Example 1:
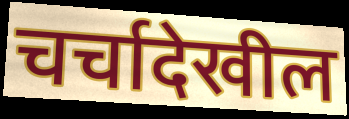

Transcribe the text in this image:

चर्चादेखील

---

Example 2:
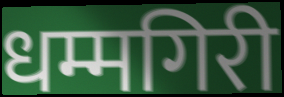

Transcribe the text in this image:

धम्मगिरी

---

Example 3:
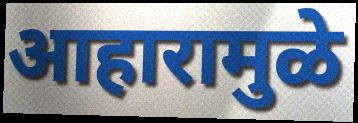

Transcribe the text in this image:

आहारामुळे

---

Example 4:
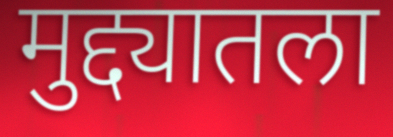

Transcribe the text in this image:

मुद्द्यातला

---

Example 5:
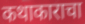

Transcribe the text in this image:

कथाकाराचा